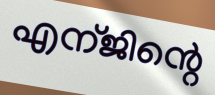
എന്ജിന്റെ